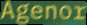
Agenor